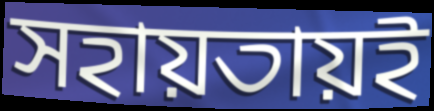
সহায়তায়ই